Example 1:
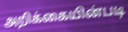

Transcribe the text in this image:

அறிக்கையின்படி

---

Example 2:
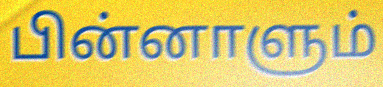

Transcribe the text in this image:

பின்னாளும்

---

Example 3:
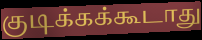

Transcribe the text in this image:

குடிக்கக்கூடாது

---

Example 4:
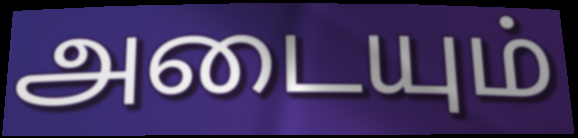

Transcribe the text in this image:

அடையும்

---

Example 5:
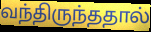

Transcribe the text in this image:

வந்திருந்ததால்